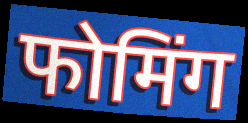
फोमिंग